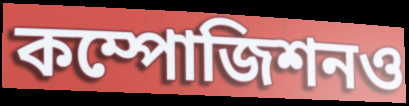
কম্পোজিশনও